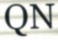
QN